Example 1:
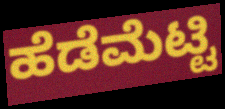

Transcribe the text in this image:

ಹೆಡೆಮೆಟ್ಟಿ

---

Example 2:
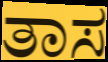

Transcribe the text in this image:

ತಾಸ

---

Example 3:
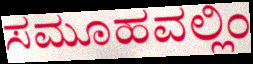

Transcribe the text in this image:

ಸಮೂಹವಲ್ಲಿಂ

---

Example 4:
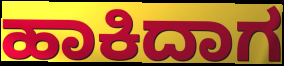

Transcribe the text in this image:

ಹಾಕಿದಾಗ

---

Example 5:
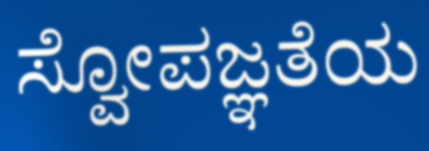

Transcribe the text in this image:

ಸ್ವೋಪಜ್ಞತೆಯ